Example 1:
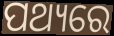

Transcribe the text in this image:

ପଥ୍ୟରେ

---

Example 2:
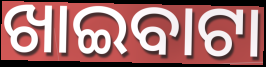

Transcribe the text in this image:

ଖାଇବାଟା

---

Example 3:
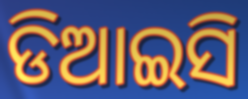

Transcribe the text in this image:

ଡିଆଇସି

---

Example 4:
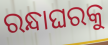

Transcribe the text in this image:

ରନ୍ଧାଘରକୁ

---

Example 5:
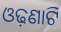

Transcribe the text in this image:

ଓଢ଼ଣାଟି